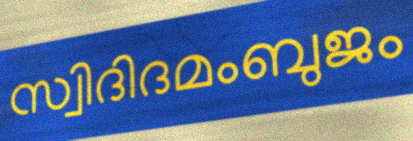
സ്വിദിദമംബുജം